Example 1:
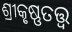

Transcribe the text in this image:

ଶ୍ରୀକୃଷ୍ଣତତ୍ତ୍ଵ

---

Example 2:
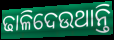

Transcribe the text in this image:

ଢାଳିଦେଉଥାନ୍ତି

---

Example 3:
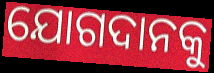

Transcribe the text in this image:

ଯୋଗଦାନକୁ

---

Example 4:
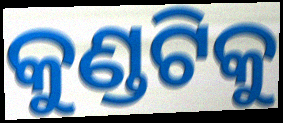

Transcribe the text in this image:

କୁଣ୍ଡଟିକୁ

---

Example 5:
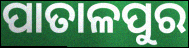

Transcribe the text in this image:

ପାତାଳପୁର